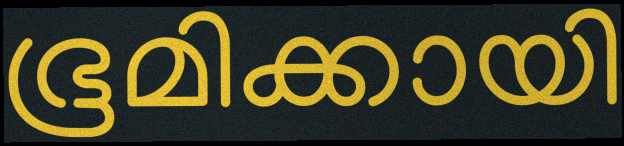
ഭൂമിക്കായി